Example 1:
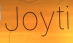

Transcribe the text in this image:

Joyti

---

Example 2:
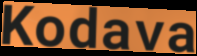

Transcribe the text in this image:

Kodava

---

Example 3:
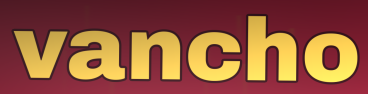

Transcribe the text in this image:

vancho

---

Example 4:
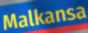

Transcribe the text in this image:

Malkansa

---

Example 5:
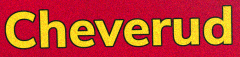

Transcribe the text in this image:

Cheverud